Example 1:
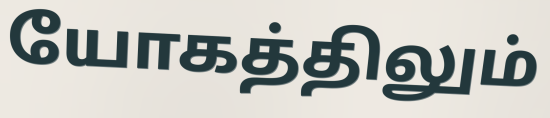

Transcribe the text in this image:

யோகத்திலும்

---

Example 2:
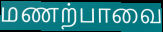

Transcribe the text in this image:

மணற்பாவை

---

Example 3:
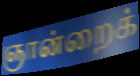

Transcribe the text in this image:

ஞான்றைக்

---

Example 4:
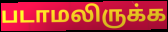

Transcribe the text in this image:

படாமலிருக்க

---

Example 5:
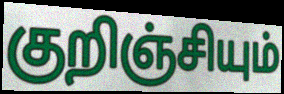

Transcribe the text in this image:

குறிஞ்சியும்